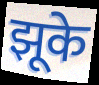
झूके